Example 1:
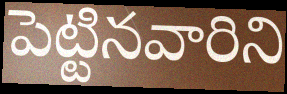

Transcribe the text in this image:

పెట్టినవారిని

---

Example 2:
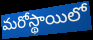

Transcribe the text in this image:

మరోస్థాయిలో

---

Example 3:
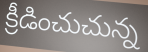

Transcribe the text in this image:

క్రీడించుచున్న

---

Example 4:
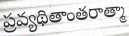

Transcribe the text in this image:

ప్రవ్యథితాంతరాత్మా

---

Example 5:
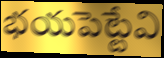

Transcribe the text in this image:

భయపెట్టేవి